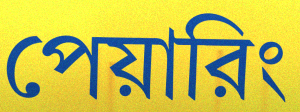
পেয়ারিং